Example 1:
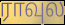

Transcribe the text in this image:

ராவுல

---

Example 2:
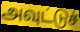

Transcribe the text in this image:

அவுட்டுச்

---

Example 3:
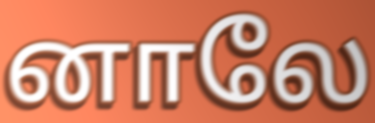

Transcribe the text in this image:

னாலே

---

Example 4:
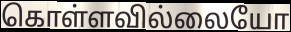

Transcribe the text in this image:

கொள்ளவில்லையோ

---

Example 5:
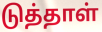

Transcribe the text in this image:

டுத்தாள்